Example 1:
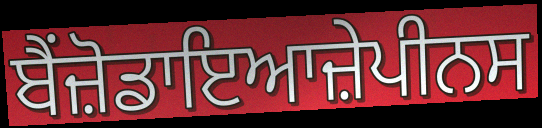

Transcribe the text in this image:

ਬੈਂਜ਼ੋਡਾਇਆਜ਼ੇਪੀਨਸ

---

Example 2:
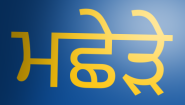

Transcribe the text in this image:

ਮਛੇੜੇ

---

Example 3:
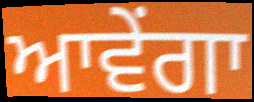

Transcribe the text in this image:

ਆਵੇਂਗਾ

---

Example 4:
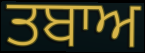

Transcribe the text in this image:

ਤਬਾਅ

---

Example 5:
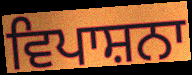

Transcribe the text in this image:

ਵਿਪਾਸ਼ਨਾ